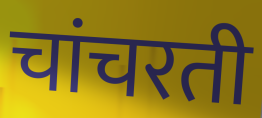
चांचरती